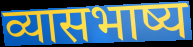
व्यासभाष्य